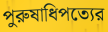
পুরুষাধিপত্যের